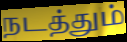
நடத்தும்